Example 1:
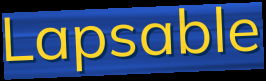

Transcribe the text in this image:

Lapsable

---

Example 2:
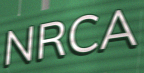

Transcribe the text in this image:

NRCA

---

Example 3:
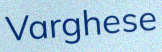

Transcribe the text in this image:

Varghese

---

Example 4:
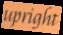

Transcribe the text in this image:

upright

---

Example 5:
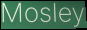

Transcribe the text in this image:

Mosley